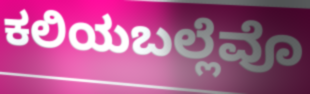
ಕಲಿಯಬಲ್ಲೆವೊ